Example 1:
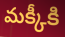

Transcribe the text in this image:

మక్కీకి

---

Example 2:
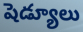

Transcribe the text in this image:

షెడ్యూలు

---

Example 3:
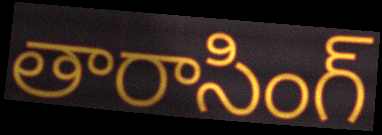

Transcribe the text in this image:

తారాసింగ్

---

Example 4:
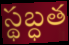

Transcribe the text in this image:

స్థబ్ధత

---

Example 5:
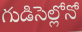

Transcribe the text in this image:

గుడిసెల్లోనో